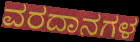
ವರದಾನಗಳ